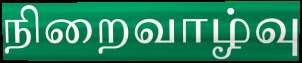
நிறைவாழ்வு